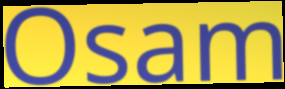
Osam